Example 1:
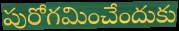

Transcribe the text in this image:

పురోగమించేందుకు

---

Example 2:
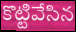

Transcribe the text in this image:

కొట్టివేసిన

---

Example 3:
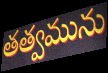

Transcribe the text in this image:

తత్వమును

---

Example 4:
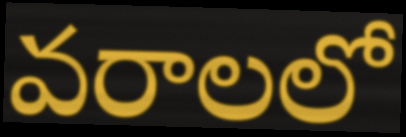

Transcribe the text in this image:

వరాలలో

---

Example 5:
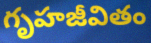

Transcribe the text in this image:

గృహజీవితం